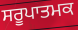
ਸਰੂਪਾਤਮਕ